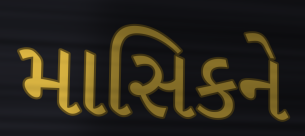
માસિકને